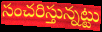
సంచరిస్తున్నట్టు